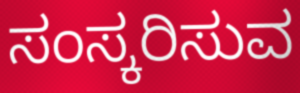
ಸಂಸ್ಕರಿಸುವ